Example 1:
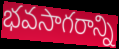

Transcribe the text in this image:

భవసాగరాన్ని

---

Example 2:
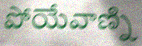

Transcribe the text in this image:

పోయేవాణ్ని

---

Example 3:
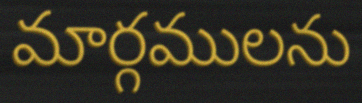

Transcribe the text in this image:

మార్గములను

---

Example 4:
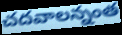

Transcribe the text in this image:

చదవాలన్నంత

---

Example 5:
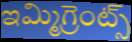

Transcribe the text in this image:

ఇమ్మిగ్రెంట్స్